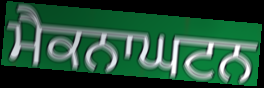
ਮੈਕਨਾਘਟਨ